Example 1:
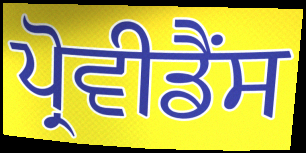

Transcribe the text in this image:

ਪ੍ਰੋਵੀਡੈਂਸ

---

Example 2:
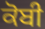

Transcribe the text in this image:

ਕੋਬੀ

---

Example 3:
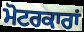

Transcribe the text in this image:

ਮੋਟਰਕਾਰਾਂ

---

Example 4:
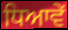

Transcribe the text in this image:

ਧਿਆਵੇਂ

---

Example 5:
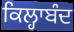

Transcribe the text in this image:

ਕਿਲ੍ਹਾਬੰਦ